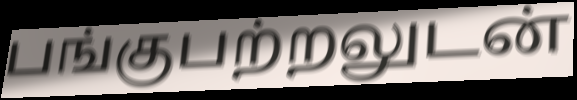
பங்குபற்றலுடன்